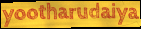
yootharudaiya